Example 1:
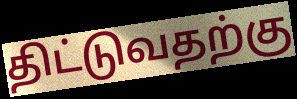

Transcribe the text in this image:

திட்டுவதற்கு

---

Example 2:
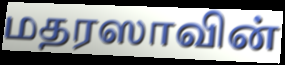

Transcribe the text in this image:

மதரஸாவின்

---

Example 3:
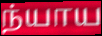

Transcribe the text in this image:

ந்யாய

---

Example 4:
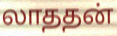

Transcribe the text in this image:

லாததன்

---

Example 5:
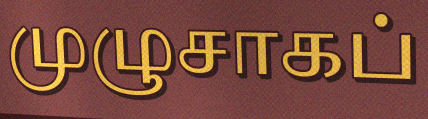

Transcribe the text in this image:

முழுசாகப்